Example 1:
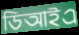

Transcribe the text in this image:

ডিআইএ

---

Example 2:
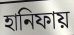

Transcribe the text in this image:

হানিফায়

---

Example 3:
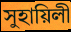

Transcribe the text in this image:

সুহায়িলী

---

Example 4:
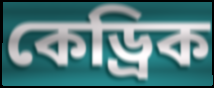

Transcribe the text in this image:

কেড্রিক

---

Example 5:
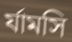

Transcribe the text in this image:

র্যামসি